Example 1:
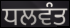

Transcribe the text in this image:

ਧਲਵੰਤ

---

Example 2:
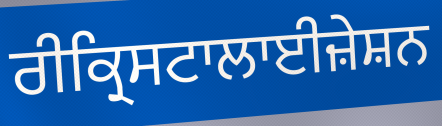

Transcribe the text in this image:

ਰੀਕ੍ਰਿਸਟਾਲਾਈਜ਼ੇਸ਼ਨ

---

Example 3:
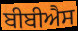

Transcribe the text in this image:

ਬੀਬੀਐਸ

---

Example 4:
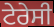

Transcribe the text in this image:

ਟੇਰੇਸੀ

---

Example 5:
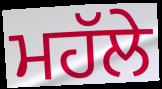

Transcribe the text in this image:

ਮਹੱਲੇ